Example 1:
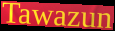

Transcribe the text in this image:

Tawazun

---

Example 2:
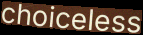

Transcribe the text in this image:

choiceless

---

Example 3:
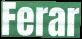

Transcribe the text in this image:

Ferar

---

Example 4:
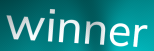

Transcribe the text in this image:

winner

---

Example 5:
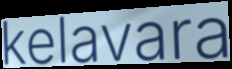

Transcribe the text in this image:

kelavara